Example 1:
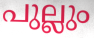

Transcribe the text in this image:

പുല്ലും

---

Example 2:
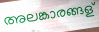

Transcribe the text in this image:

അലങ്കാരങ്ങള്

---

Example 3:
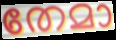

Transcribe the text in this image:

തേമാ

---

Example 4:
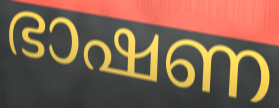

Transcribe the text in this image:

ഭാഷണ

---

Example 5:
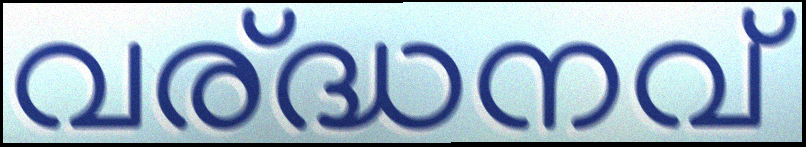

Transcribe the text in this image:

വര്ദ്ധനവ്